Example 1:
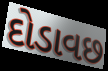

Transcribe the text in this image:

દોડાવછ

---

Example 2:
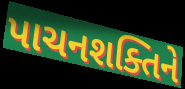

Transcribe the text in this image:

પાચનશક્તિને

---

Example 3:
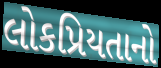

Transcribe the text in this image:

લોકપ્રિયતાનો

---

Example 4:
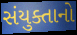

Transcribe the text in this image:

સંયુક્તાનો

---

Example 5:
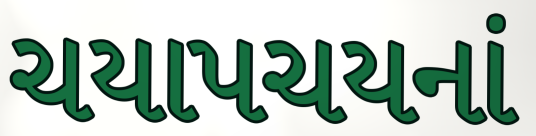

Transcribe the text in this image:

ચયાપચયનાં